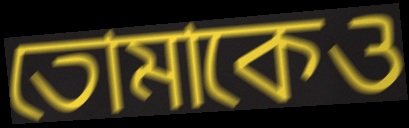
তোমাকেও